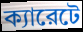
ক্যারেটে